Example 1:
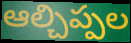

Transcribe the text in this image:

ఆల్చిప్పల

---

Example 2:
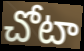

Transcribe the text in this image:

చోటా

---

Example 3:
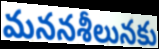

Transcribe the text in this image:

మననశీలునకు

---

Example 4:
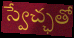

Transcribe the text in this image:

స్వేచ్ఛతో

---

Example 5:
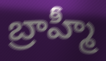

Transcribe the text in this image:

బ్రాహ్మీ